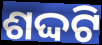
ଶଦ୍ଦଟି